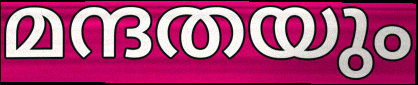
മന്ദതയും